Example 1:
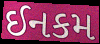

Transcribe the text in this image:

ઈનકમ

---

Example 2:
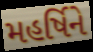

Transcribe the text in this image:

મહર્ષિને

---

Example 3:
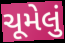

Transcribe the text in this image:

ચૂમેલું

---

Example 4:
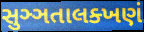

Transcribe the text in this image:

સુઞ્ઞતાલક્ખણં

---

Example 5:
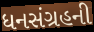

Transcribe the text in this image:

ધનસંગ્રહની